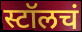
स्टॉलचं